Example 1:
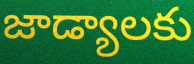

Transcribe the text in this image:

జాడ్యాలకు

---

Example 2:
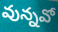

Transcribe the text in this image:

వున్నవో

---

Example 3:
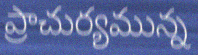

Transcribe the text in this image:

ప్రాచుర్యమున్న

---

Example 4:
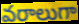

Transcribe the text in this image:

వరాలుగా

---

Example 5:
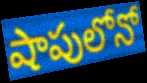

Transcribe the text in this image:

షాపులోనో